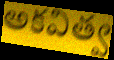
అకవిత్వ